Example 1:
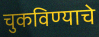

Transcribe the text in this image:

चुकविण्याचे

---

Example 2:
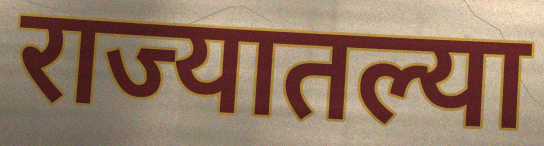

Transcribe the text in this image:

राज्यातल्या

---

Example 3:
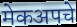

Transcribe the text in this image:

मेकअपचे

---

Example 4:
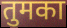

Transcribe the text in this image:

तुमका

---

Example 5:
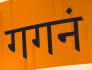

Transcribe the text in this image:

गगनं